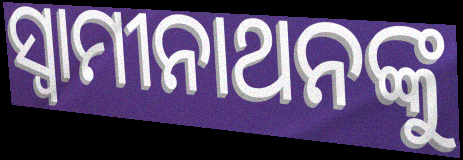
ସ୍ୱାମୀନାଥନଙ୍କୁ